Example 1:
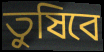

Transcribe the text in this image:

তুষিবে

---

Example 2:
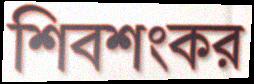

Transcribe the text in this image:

শিবশংকর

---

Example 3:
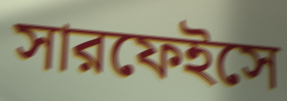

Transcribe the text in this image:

সারফেইসে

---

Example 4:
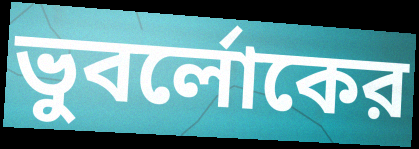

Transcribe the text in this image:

ভুবর্লোকের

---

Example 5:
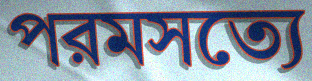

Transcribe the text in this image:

পরমসত্যে